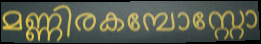
മണ്ണിരകമ്പോസ്റ്റോ